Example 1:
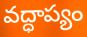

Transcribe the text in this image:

వద్ధాప్యం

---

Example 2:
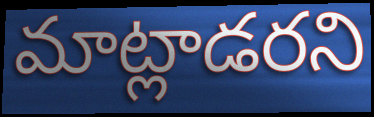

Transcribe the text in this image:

మాట్లాడరని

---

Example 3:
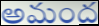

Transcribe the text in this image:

అమంద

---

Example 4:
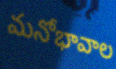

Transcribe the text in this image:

మనోభావాల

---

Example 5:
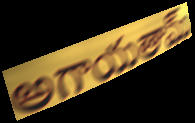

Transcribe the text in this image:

అగాయతామ్